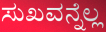
ಸುಖವನ್ನೆಲ್ಲ